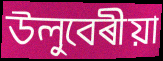
উলুবেৰীয়া